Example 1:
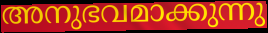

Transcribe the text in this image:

അനുഭവമാക്കുന്നു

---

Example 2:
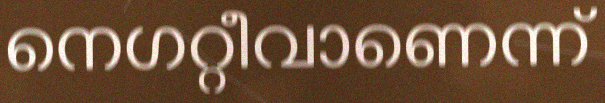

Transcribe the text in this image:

നെഗറ്റീവാണെന്ന്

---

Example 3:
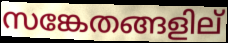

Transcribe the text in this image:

സങ്കേതങ്ങളില്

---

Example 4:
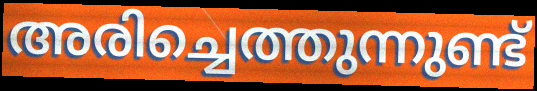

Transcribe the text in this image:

അരിച്ചെത്തുന്നുണ്ട്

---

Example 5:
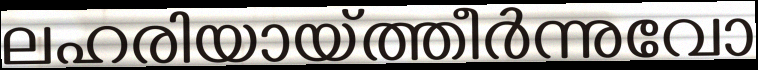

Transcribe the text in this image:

ലഹരിയായ്ത്തീർന്നുവോ